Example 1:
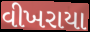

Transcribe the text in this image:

વીખરાયા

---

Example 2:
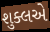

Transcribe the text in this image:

શુક્લએ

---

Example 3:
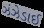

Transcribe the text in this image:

ઝંઝેડાઈ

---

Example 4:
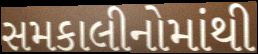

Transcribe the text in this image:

સમકાલીનોમાંથી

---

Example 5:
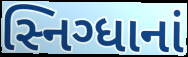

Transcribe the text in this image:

સ્નિગ્ધાનાં